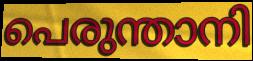
പെരുന്താനി